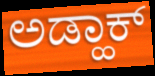
ಅಡ್ಹಾಕ್